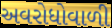
અવરોધોવાળી